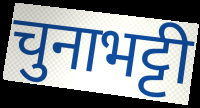
चुनाभट्टी